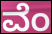
ವೆಂ